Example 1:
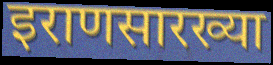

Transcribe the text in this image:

इराणसारख्या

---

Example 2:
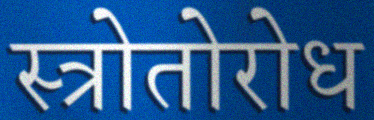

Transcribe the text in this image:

स्त्रोतोरोध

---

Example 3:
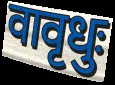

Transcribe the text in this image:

वावृधुः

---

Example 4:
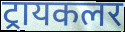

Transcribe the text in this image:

ट्रायकलर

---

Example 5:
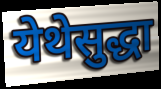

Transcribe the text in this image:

येथेसुद्धा